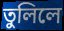
তুলিলে